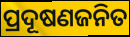
ପ୍ରଦୂଷଣଜନିତ